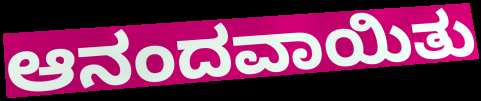
ಆನಂದವಾಯಿತು